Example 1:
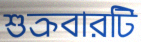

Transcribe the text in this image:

শুক্রবারটি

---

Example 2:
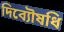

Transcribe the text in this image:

দিব্যৌষধি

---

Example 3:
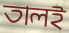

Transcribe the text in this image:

তালই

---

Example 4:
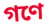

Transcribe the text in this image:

গণে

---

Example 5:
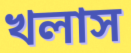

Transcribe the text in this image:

খলাস